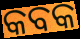
କବକ